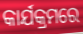
କାର୍ଯକ୍ରମରେ